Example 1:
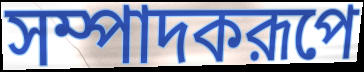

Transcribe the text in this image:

সম্পাদকরূপে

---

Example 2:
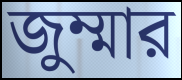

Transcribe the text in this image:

জুম্মার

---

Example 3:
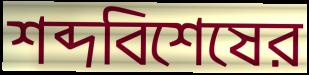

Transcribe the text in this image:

শব্দবিশেষের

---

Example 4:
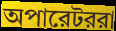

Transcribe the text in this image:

অপারেটররা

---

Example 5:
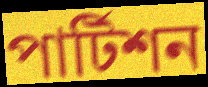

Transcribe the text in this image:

পার্টিশন